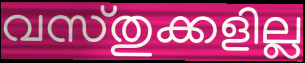
വസ്തുക്കളില്ല